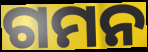
ଗମନ